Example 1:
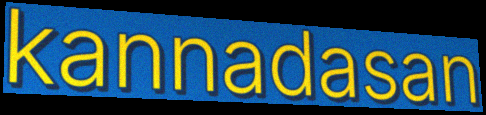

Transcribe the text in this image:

kannadasan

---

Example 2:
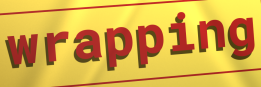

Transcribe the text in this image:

wrapping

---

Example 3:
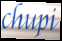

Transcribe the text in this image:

chupi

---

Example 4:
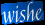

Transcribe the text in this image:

wishe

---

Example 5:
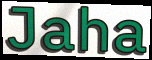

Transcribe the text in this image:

Jaha